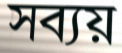
সব্যয়